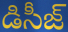
డిసీజ్